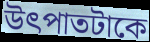
উৎপাতটাকে